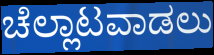
ಚೆಲ್ಲಾಟವಾಡಲು